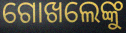
ଗୋଖଲେଙ୍କୁ